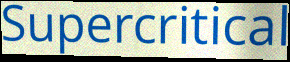
Supercritical